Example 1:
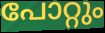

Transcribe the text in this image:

പോറ്റും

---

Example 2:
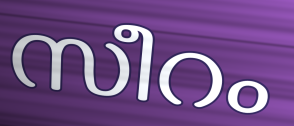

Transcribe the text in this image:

സീറം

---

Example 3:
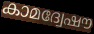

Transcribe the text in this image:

കാമദ്വേഷൗ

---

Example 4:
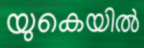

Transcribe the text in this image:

യുകെയിൽ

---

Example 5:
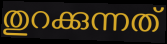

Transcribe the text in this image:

തുറക്കുന്നത്